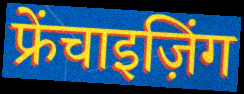
फ्रेंचाइज़िंग